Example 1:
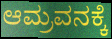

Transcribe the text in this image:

ಆಮ್ರವನಕ್ಕೆ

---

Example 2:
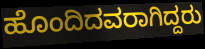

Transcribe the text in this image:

ಹೊಂದಿದವರಾಗಿದ್ದರು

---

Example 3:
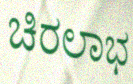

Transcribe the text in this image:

ಚಿರಲಾಭ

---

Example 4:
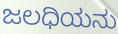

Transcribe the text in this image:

ಜಲಧಿಯನು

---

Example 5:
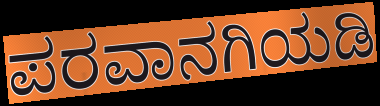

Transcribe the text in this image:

ಪರವಾನಗಿಯಡಿ